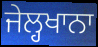
ਜੇਲ੍ਹਖਾਨਾ